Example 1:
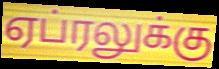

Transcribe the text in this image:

ஏப்ரலுக்கு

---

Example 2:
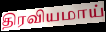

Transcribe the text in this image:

திரவியமாய்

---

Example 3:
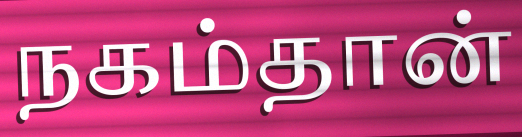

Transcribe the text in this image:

நகம்தான்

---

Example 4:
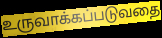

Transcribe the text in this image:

உருவாக்கப்படுவதை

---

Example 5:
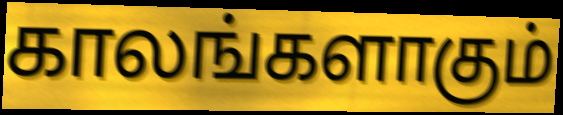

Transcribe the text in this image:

காலங்களாகும்